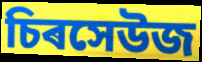
চিৰসেউজ